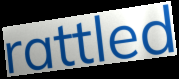
rattled